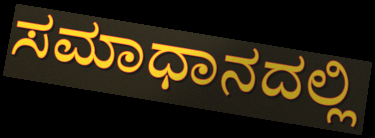
ಸಮಾಧಾನದಲ್ಲಿ